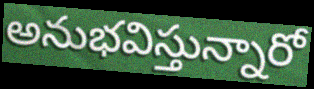
అనుభవిస్తున్నారో